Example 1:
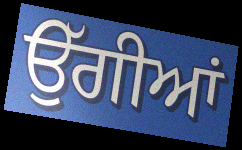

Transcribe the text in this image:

ਉੱਗੀਆਂ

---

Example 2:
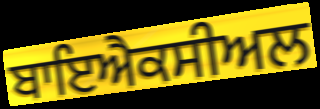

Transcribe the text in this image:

ਬਾਇਐਕਸੀਅਲ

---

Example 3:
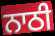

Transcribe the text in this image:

ਨਾਠੀ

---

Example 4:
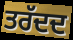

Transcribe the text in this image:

ਤਰੱਦਦ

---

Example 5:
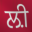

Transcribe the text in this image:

ਲ਼ੀ